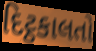
દિટ્ઠકાલતો